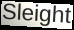
Sleight